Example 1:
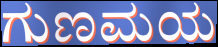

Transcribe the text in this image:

ಗುಣಮಯ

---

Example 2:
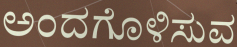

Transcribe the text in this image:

ಅಂದಗೊಳಿಸುವ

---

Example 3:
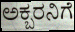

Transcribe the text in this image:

ಅಕ್ಬರನಿಗೆ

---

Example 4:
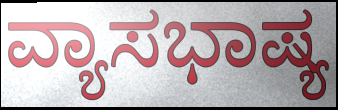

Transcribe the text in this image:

ವ್ಯಾಸಭಾಷ್ಯ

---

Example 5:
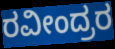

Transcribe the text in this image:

ರವೀಂದ್ರರ